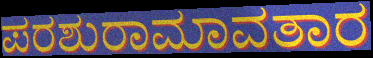
ಪರಶುರಾಮಾವತಾರ